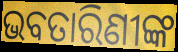
ଭବତାରିଣୀଙ୍କ